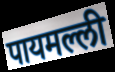
पायमल्ली